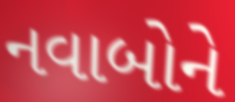
નવાબોને